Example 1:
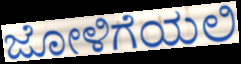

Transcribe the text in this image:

ಜೋಳಿಗೆಯಲಿ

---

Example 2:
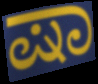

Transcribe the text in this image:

ಷಾ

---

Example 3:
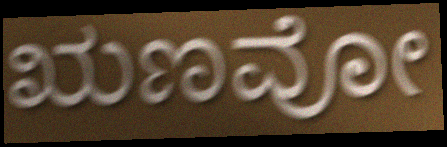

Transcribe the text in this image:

ಋಣವೋ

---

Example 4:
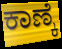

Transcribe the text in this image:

ಕಾಣ್ಕೆ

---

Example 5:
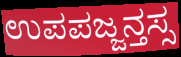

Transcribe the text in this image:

ಉಪಪಜ್ಜನ್ತಸ್ಸ